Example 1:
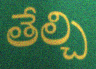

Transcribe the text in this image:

తేల్చి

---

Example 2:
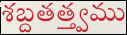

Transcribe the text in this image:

శబ్దతత్త్వము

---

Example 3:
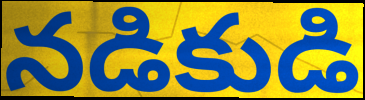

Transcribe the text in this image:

నడికుడి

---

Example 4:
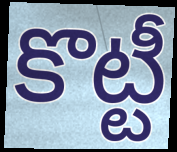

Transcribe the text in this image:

కొట్టీ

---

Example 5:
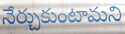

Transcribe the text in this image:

నేర్చుకుంటామని